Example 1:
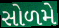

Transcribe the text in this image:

સોળમે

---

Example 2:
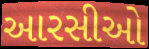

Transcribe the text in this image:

આરસીઓ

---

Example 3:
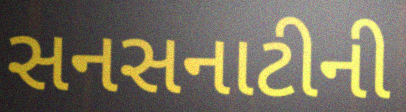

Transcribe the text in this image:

સનસનાટીની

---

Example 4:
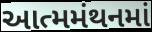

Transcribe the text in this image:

આત્મમંથનમાં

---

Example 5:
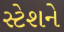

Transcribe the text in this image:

સ્ટેશને